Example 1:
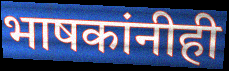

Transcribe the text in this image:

भाषकांनीही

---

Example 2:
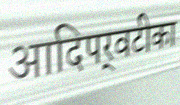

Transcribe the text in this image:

आदिपर्वटीका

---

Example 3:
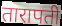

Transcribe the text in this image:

तारापती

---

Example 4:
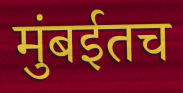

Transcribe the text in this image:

मुंबईतच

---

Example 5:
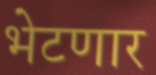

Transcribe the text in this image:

भेटणार